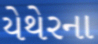
યેથેરના